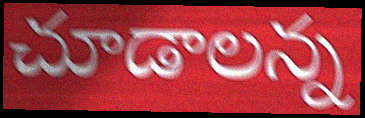
చూడాలన్న